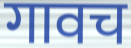
गावच